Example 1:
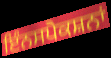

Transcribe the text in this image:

ਇੰਨਸਪੈਕਸ਼ਨਾਂ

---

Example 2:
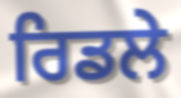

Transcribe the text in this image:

ਰਿਡਲੇ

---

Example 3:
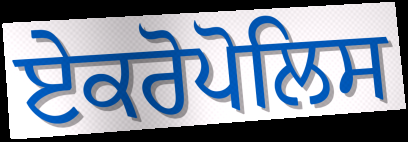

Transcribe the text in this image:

ਏਕਰੋਪੋਲਿਸ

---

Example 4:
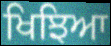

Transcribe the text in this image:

ਖਿਝਿਆ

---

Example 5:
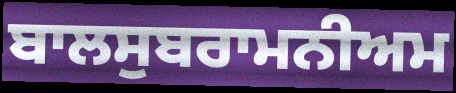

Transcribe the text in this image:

ਬਾਲਸੁਬਰਾਮਨੀਅਮ